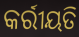
କର୍ରୀୟତି